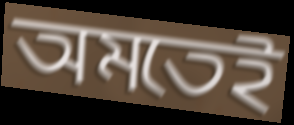
অমতেই